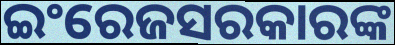
ଇଂରେଜସରକାରଙ୍କ